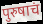
पुरुषाचं